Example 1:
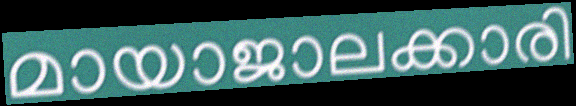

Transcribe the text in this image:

മായാജാലക്കാരി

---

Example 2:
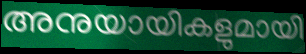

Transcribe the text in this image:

അനുയായികളുമായി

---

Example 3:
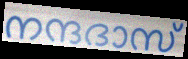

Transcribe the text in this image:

നന്ദദാസ്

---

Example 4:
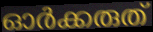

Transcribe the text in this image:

ഓർക്കരുത്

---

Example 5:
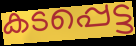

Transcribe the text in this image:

കടപ്പെട്ട